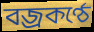
বজ্রকণ্ঠে